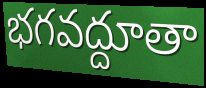
భగవద్దూతా